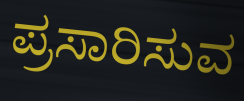
ಪ್ರಸಾರಿಸುವ